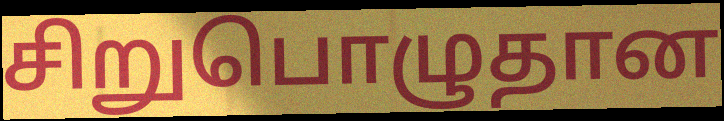
சிறுபொழுதான